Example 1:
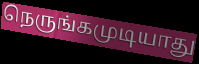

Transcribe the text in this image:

நெருங்கமுடியாது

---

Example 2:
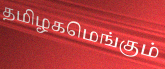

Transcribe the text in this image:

தமிழகமெங்கும்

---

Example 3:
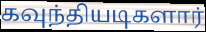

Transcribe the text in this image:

கவுந்தியடிகளார்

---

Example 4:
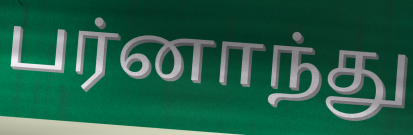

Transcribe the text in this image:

பர்னாந்து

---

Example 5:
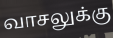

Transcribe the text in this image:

வாசலுக்கு